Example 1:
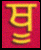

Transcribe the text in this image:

ਥੂ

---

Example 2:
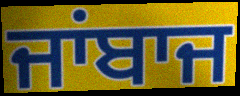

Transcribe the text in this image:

ਜਾਂਬਾਜ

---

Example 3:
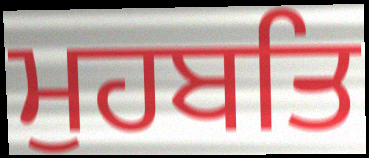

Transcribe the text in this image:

ਮੁਹਬਤਿ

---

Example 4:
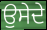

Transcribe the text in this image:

ਉਸੇਦੇ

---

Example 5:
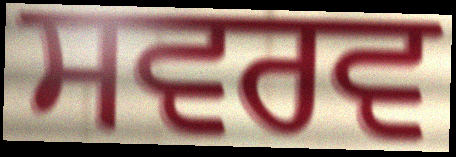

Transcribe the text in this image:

ਸਵਰਵ